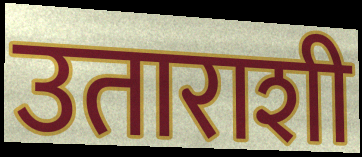
उताराशी